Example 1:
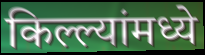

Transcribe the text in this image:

किल्ल्यांमध्ये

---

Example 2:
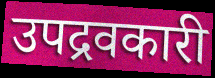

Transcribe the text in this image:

उपद्रवकारी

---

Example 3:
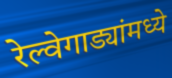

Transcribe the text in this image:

रेल्वेगाड्यांमध्ये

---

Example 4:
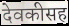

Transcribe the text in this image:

देवकीसह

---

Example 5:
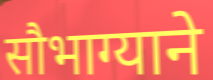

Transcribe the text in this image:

सौभाग्याने